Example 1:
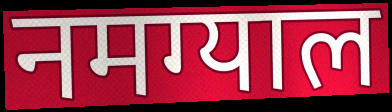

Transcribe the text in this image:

नमग्याल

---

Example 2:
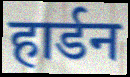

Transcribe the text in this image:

हार्डन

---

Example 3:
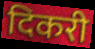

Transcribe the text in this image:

दिकरी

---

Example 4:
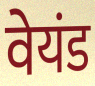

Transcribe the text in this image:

वेयंड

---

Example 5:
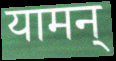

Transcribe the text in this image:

यामन्